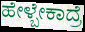
ಹೇಳ್ಬೇಕಾದ್ರೆ